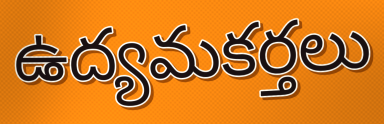
ఉద్యమకర్తలు